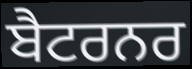
ਬੈਟਰਨਰ